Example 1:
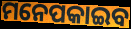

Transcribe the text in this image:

ମନେପକାଇବ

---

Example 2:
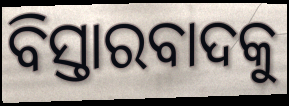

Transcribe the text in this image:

ବିସ୍ତାରବାଦକୁ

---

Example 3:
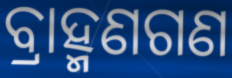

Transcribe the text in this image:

ବ୍ରାହ୍ମଣଗଣ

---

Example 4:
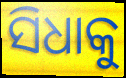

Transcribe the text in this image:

ସିଧାକୁ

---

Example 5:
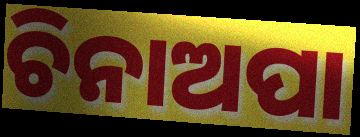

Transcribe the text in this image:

ଚିନାଅପା